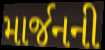
માર્જનની